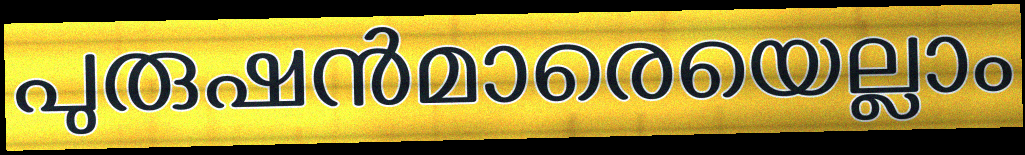
പുരുഷൻമാരെയെല്ലാം